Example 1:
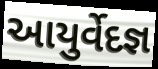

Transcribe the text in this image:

આયુર્વેદજ્ઞ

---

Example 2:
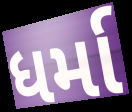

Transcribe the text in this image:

ધર્મા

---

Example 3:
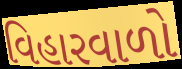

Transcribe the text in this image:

વિહારવાળો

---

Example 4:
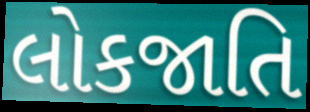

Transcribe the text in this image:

લોકજાતિ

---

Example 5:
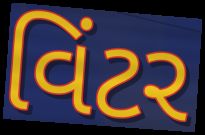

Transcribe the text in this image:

વિંટર